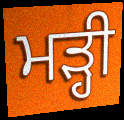
ਮੜ੍ਹੀ